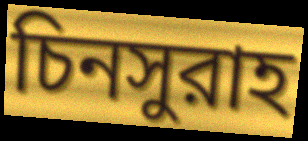
চিনসুরাহ